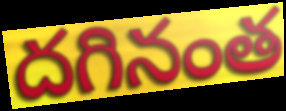
దగినంత